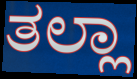
ತಲ್ಲಾ